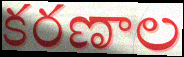
కరణాల